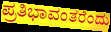
ಪ್ರತಿಭಾವಂತರೆಂದು